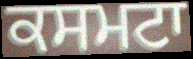
ਕਸਮਟਾ